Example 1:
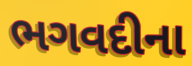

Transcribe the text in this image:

ભગવદીના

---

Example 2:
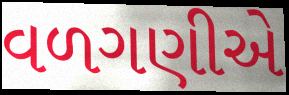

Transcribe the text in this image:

વળગણીએ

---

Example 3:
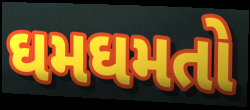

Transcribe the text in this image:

ઘમઘમતો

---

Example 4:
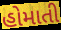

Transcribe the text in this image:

હોમાતી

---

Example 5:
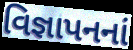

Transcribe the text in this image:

વિજ્ઞાપનનાં